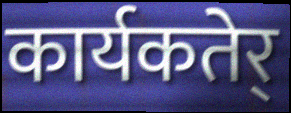
कार्यकतेर्